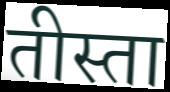
तीस्ता